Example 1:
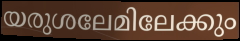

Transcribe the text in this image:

യരുശലേമിലേക്കും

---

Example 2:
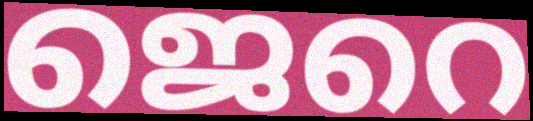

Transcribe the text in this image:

ജെറെ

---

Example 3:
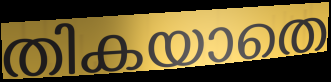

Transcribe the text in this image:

തികയാതെ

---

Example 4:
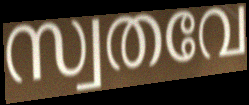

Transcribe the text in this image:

സ്വതവേ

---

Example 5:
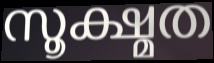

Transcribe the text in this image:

സൂക്ഷ്മത